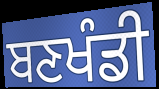
ਬਣਖੰਡੀ